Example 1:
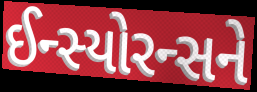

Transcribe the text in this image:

ઈન્સ્યોરન્સને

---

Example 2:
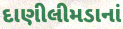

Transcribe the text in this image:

દાણીલીમડાનાં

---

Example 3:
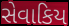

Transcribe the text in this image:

સેવાકિય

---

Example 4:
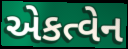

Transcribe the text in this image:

એકત્વેન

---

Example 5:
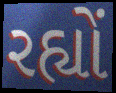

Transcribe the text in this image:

રહ્યોં